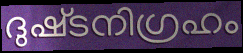
ദുഷ്‌ടനിഗ്രഹം